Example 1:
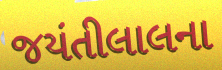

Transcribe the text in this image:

જયંતીલાલના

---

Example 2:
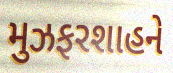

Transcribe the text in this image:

મુઝફરશાહને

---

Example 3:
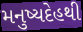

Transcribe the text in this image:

મનુષ્યદેહથી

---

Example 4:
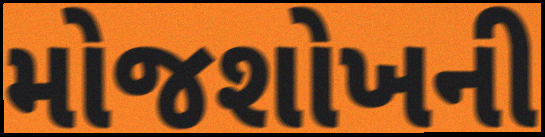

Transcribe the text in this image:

મોજશોખની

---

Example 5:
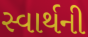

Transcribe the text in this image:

સ્વાર્થની